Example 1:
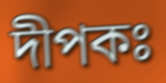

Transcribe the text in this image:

দীপকঃ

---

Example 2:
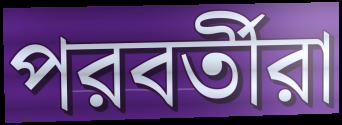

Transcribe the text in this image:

পরবর্তীরা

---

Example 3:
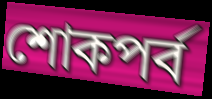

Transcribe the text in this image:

শোকপর্ব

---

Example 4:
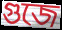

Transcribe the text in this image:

গুজে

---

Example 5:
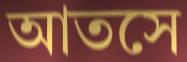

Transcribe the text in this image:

আতসে